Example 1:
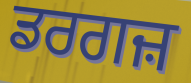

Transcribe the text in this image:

ਡਰਗਜ਼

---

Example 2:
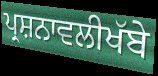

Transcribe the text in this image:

ਪ੍ਰਸ਼ਨਾਵਲੀਖੱਬੇ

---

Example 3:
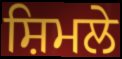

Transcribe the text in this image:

ਸ਼ਿਮਲੇ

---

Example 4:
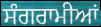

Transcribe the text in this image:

ਸੰਗਰਾਮੀਆਂ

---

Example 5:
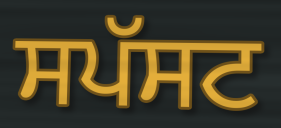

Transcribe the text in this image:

ਸਪੱਸਟ